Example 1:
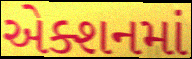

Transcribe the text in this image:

એક્શનમાં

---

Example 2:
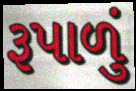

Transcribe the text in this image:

રૂપાળું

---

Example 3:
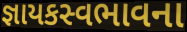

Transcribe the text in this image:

જ્ઞાયકસ્વભાવના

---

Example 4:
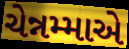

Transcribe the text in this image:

ચેન્નમ્માએ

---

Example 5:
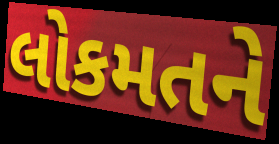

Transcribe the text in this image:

લોકમતને